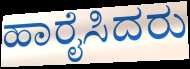
ಹಾರೈಸಿದರು